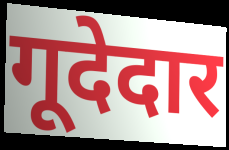
गूदेदार